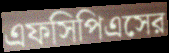
এফসিপিএসের